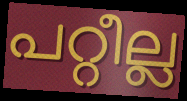
പറ്റീല്ല